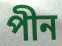
পীন